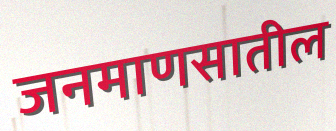
जनमाणसातील